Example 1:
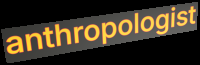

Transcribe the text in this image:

anthropologist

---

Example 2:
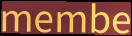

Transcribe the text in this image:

membe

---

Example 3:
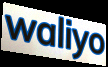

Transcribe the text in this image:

waliyo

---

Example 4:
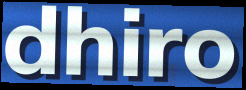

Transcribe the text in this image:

dhiro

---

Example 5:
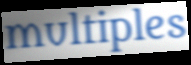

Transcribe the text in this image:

multiples